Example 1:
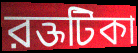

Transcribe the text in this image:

রক্তটিকা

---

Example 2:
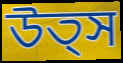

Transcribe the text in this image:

উত্স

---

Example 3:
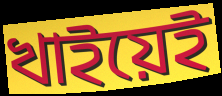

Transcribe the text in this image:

খাইয়েই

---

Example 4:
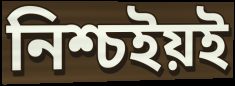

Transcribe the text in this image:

নিশ্চইয়ই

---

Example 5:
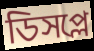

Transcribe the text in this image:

ডিসপ্লে